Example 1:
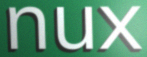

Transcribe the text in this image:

nux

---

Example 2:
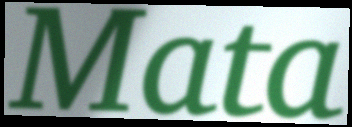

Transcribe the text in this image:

Mata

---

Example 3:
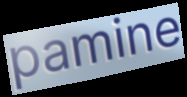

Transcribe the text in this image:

pamine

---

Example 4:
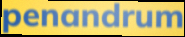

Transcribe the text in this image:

penandrum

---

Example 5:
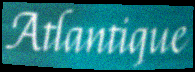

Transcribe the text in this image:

Atlantique